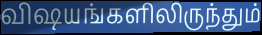
விஷயங்களிலிருந்தும்